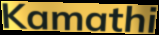
Kamathi